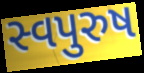
સ્વપુરુષ